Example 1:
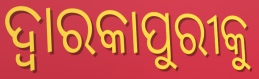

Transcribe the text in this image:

ଦ୍ୱାରକାପୁରୀକୁ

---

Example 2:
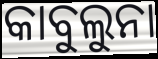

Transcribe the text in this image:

କାବୁଲୁନା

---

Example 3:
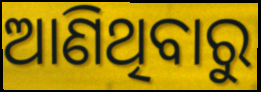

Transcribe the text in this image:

ଆଣିଥିବାରୁ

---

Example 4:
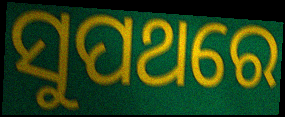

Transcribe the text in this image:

ସୁପଥରେ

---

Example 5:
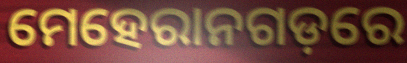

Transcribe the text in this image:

ମେହେରାନଗଡ଼ରେ